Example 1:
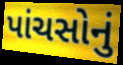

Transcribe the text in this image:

પાંચસોનું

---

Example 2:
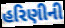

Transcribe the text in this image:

હરિણીની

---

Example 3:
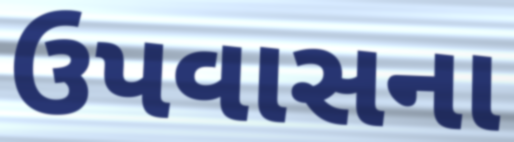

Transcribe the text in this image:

ઉપવાસના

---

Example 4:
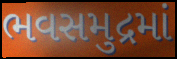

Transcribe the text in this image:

ભવસમુદ્રમાં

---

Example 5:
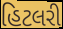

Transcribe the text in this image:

હિટલરી